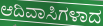
ಆದಿವಾಸಿಗಳಾದ